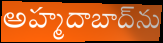
అహ్మదాబాద్‌ను